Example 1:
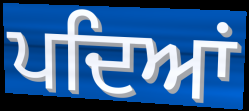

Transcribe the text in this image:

ਪਦਿਆਂ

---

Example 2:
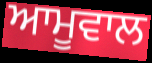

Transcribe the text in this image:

ਆਮੂਵਾਲ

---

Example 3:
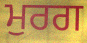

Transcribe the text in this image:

ਮੁਰਗ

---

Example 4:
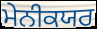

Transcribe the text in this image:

ਮੇਨੀਕਯਰ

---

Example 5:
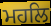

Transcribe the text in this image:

ਮਹਲਿ